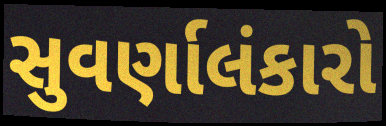
સુવર્ણાલંકારો